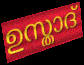
ഉസ്താദ്